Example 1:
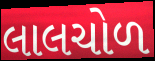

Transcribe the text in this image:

લાલચોળ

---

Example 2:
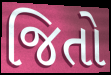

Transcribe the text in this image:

જિતો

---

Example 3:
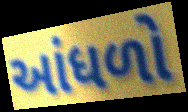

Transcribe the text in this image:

આંધળો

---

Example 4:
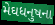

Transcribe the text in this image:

મેઘધનુષના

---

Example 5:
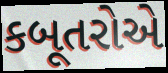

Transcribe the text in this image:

કબૂતરોએ